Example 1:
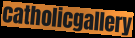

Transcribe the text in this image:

catholicgallery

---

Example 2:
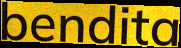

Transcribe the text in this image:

bendita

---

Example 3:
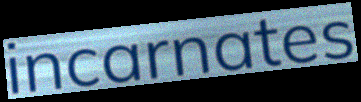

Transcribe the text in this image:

incarnates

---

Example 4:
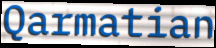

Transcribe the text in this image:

Qarmatian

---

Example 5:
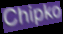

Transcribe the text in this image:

Chipko